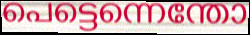
പെട്ടെന്നെന്തോ